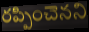
రప్పించెనని